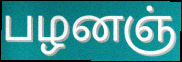
பழனஞ்